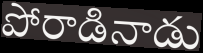
పోరాడినాడు